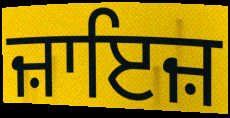
ਜ਼ਾਇਜ਼